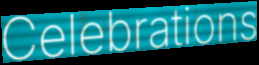
Celebrations